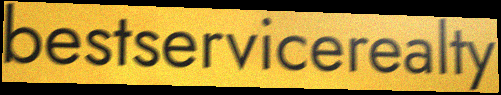
bestservicerealty